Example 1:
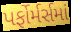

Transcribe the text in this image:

પર્ફોર્મર્સમાં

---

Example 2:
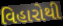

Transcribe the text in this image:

વિહારોથી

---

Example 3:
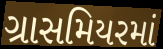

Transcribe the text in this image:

ગ્રાસમિયરમાં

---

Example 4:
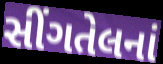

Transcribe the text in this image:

સીંગતેલનાં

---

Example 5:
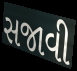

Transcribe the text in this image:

સજાવી